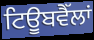
ਟਿਊੁਬਵੈੱਲਾਂ